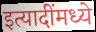
इत्यादींमध्ये